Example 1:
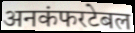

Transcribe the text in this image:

अनकंफरटेबल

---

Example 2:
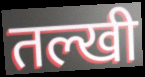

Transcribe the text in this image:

तल्‍खी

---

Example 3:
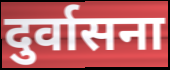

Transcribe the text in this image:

दुर्वासना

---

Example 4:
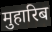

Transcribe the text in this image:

मुहारिब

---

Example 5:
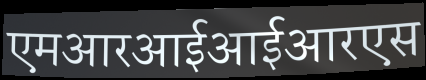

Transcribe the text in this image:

एमआरआईआईआरएस